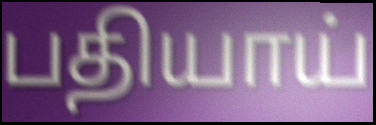
பதியாய்